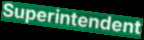
Superintendent